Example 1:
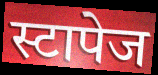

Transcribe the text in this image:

स्टापेज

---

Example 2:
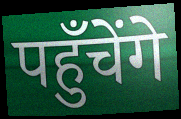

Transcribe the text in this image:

पहुँचेंगे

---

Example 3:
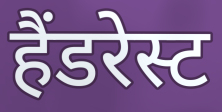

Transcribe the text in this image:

हैंडरेस्ट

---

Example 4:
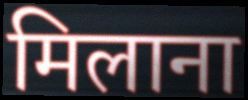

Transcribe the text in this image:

मिलाना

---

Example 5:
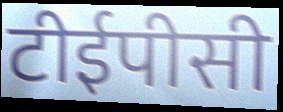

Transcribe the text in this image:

टीईपीसी